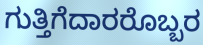
ಗುತ್ತಿಗೆದಾರರೊಬ್ಬರ